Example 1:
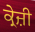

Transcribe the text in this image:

ਕ੍ਰੇਜ਼ੀ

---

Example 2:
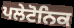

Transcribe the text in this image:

ਪਲੇਟੋਨਿਕ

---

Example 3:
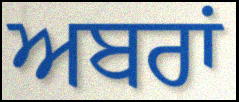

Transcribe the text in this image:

ਅਬਰਾਂ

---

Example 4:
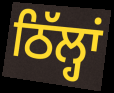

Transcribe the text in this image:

ਠਿੱਲ੍ਹਾਂ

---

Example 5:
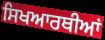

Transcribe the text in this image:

ਸਿਖਆਰਥੀਆਂ